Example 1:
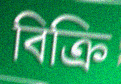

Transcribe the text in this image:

বিক্রি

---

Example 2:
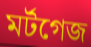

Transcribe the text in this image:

মর্টগেজ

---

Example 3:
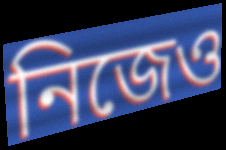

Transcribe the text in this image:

নিজেও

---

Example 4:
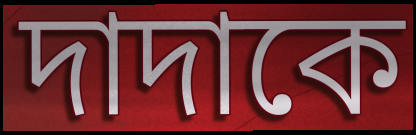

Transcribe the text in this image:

দাদাকে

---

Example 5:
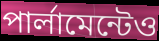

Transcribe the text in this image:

পার্লামেন্টেও